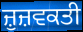
ਜ਼ੁਜ਼ਵਕਤੀ